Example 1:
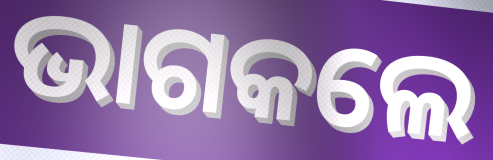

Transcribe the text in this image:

ଭାଗକଲେ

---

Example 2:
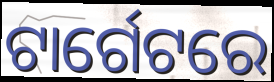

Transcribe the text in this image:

ଟାର୍ଗେଟରେ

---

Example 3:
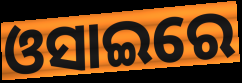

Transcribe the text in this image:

ଓସାଇରେ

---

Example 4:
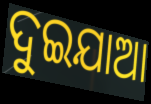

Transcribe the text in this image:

ଦୁଇଯାଆ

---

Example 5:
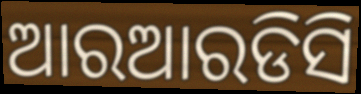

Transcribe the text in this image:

ଆରଆରଡିସି